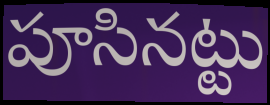
పూసినట్టు